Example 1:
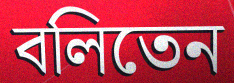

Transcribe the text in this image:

বলিতেন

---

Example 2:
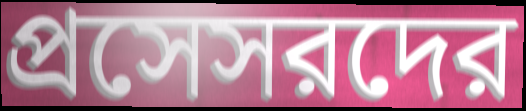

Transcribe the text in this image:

প্রসেসরদের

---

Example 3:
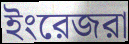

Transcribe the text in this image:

ইংরেজরা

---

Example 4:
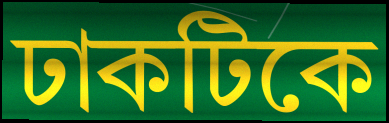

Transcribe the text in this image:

ঢাকটিকে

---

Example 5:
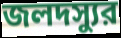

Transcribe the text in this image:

জলদস্যুর